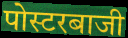
पोस्टरबाजी